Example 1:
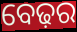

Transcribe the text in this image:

ବେଢ଼ର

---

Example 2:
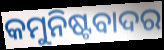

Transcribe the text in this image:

କମୁନିଷ୍ଟବାଦର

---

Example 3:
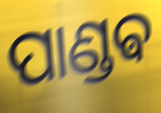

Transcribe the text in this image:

ପାଣ୍ଡଵ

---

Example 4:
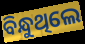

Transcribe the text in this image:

ବିନ୍ଧୁଥିଲେ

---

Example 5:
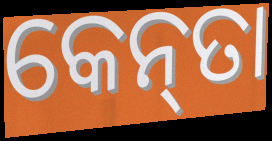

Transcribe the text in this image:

କେନ୍‌ତା